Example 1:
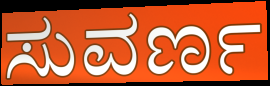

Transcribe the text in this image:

ಸುವರ್ಣ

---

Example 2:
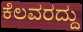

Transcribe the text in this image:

ಕೆಲವರದ್ದು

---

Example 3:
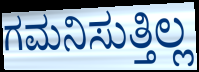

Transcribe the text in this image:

ಗಮನಿಸುತ್ತಿಲ್ಲ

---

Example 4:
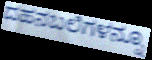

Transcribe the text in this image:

ದಹನಬಲಿಗಳನ್ನೂ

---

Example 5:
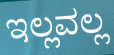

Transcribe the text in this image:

ಇಲ್ಲವಲ್ಲ